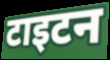
टाइटन